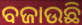
ବଜାଉଛି